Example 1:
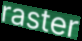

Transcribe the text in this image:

raster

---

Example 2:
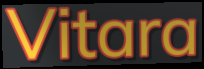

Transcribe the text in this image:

Vitara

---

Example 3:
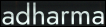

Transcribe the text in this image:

adharma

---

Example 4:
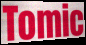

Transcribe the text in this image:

Tomic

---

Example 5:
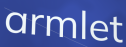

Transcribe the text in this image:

armlet